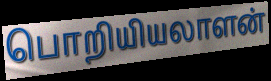
பொறியியலாளன்